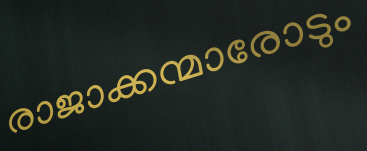
രാജാക്കന്മാരോടും